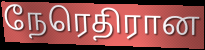
நேரெதிரான